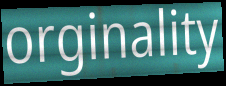
orginality